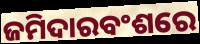
ଜମିଦାରବଂଶରେ